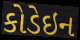
કોડેઇન